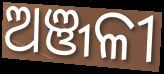
ଅଞ୍ଜଳୀ